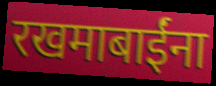
रखमाबाईंना